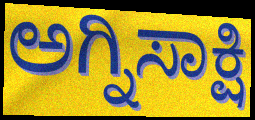
ಅಗ್ನಿಸಾಕ್ಷಿ